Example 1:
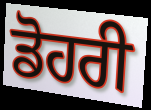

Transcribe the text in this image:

ਡੋਹਰੀ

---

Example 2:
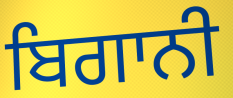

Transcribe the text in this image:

ਬਿਗਾਨੀ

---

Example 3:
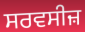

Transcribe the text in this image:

ਸਰਵਸੀਜ਼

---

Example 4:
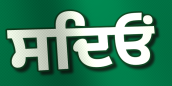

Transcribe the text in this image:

ਸਦਿਓਂ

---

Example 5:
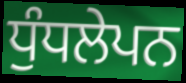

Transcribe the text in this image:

ਧੁੰਧਲੇਪਨ